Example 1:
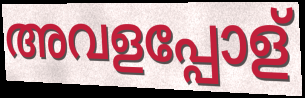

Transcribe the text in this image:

അവളപ്പോള്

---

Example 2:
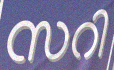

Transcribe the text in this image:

സറി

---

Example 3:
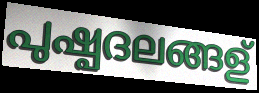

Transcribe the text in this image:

പുഷ്പദലങ്ങള്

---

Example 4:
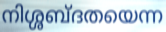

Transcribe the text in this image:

നിശ്ശബ്ദതയെന്ന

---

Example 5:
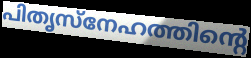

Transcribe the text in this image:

പിതൃസ്നേഹത്തിന്റെ